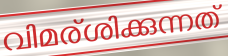
വിമര്ശിക്കുന്നത്